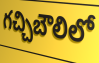
గచ్చిబౌలిలో